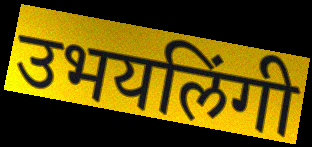
उभयलिंगी